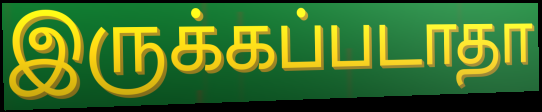
இருக்கப்படாதா